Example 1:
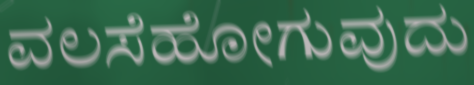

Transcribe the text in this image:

ವಲಸೆಹೋಗುವುದು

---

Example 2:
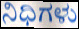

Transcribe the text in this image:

ನಿಧಿಗಳು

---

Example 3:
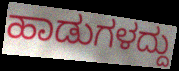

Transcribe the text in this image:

ಹಾಡುಗಳದ್ದು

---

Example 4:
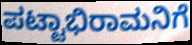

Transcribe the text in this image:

ಪಟ್ಟಾಭಿರಾಮನಿಗೆ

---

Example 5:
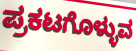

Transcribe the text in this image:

ಪ್ರಕಟಗೊಳ್ಳುವ